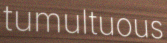
tumultuous